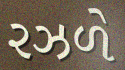
રઝળે